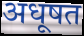
अधूषत